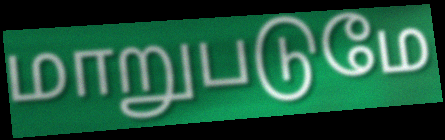
மாறுபடுமே